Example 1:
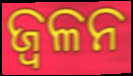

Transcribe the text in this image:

ଜ୍ୱଳନ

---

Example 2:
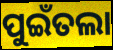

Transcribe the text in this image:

ପୁଇଁତଲା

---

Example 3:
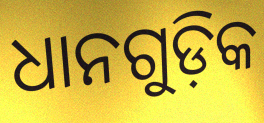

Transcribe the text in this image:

ଧାନଗୁଡ଼ିକ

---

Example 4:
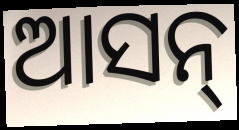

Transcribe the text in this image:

ଆସନ୍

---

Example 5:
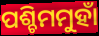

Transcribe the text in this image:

ପଶ୍ଚିମମୁହାଁ